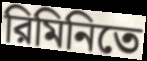
রিমিনিতে